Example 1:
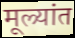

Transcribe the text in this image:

मूल्यांत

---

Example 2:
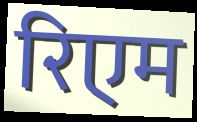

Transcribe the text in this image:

रिएम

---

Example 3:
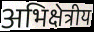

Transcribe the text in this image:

अभिक्षेत्रीय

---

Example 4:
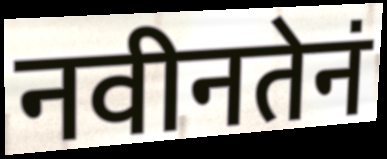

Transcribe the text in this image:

नवीनतेनं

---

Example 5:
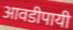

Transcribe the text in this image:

आवडीपायी